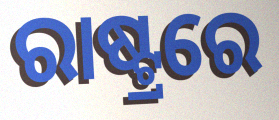
ରାଷ୍ଟ୍ରରେ